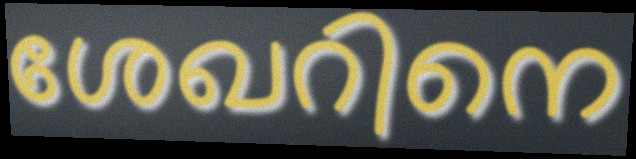
ശേഖറിനെ